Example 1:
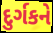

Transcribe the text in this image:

દુર્ગકને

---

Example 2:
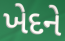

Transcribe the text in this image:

ખેદને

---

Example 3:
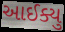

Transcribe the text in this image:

આઈક્યુ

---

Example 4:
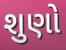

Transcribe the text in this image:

શુણો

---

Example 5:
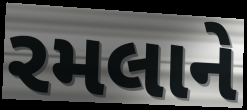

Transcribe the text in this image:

રમલાને